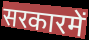
सरकारमें